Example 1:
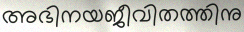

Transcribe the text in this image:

അഭിനയജീവിതത്തിനു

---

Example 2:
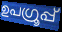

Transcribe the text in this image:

ഉപഗ്രൂപ്പ്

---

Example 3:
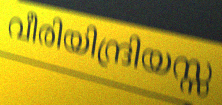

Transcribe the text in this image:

വീരിയിന്ദ്രിയസ്സ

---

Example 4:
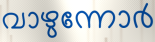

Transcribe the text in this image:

വാഴുന്നോർ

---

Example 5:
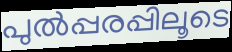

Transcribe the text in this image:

പുൽപ്പരപ്പിലൂടെ